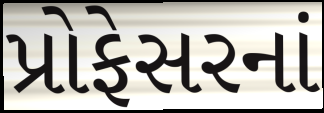
પ્રોફેસરનાં